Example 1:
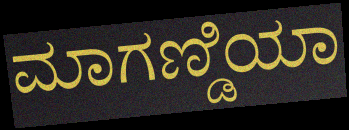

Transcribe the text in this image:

ಮಾಗಣ್ಡಿಯಾ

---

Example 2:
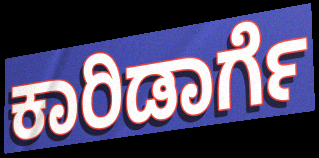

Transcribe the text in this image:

ಕಾರಿಡಾರ್ಗೆ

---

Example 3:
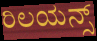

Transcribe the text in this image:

ರಿಲಯನ್ಸ್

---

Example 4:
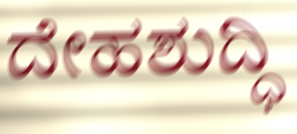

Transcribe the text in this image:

ದೇಹಶುದ್ಧಿ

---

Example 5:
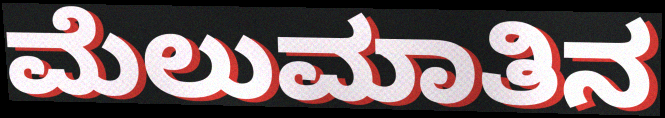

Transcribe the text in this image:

ಮೆಲುಮಾತಿನ